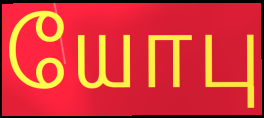
யோபு